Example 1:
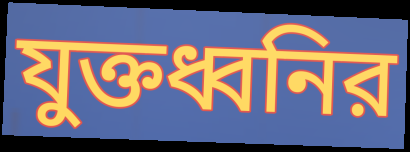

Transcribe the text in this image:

যুক্তধ্বনির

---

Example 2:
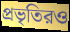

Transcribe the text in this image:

প্রভৃতিরও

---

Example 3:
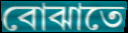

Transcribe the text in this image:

বোঝাতে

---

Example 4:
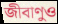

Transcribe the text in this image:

জীবাণুও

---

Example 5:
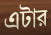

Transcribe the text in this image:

এটার